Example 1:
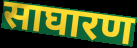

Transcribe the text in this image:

साघारण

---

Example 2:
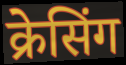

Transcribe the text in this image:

क्रेसिंग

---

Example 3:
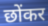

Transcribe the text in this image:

छोंकर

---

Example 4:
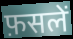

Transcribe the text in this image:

फ़सलें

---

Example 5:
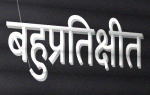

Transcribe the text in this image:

बहुप्रतिक्षीत